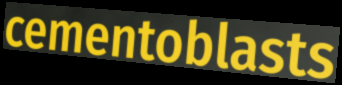
cementoblasts